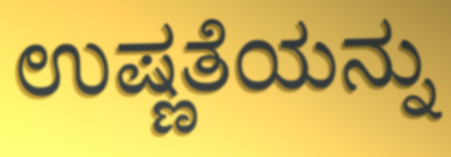
ಉಷ್ಣತೆಯನ್ನು